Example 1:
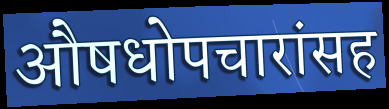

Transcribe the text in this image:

औषधोपचारांसह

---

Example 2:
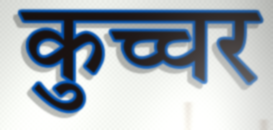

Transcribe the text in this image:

कुच्चर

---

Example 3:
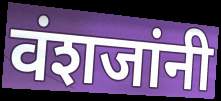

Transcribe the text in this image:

वंशजांनी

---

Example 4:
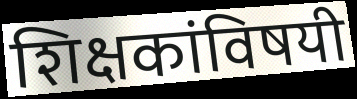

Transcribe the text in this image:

शिक्षकांविषयी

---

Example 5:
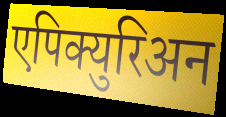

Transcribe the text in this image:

एपिक्युरिअन